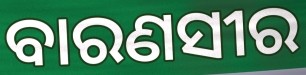
ବାରଣସୀର